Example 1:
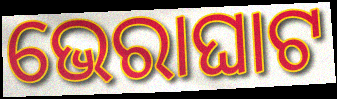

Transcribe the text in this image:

ଭେରାଘାଟ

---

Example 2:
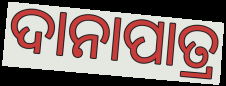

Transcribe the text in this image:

ଦାନାପାତ୍ର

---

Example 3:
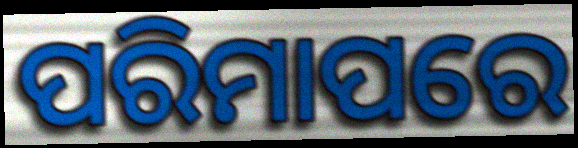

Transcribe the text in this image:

ପରିମାପରେ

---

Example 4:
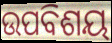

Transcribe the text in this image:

ଉପବିଶୟ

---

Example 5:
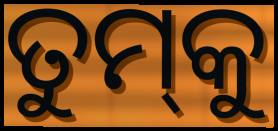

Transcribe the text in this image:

ତୁମ୍‌କୁ